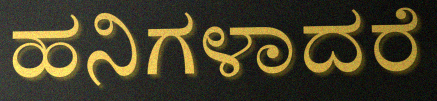
ಹನಿಗಳಾದರೆ